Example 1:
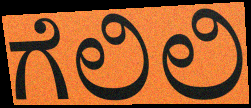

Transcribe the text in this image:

ಗೆಲಿಲಿ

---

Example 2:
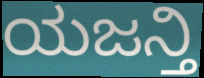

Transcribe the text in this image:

ಯಜನ್ತಿ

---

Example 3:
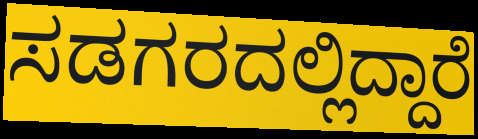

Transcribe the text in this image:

ಸಡಗರದಲ್ಲಿದ್ದಾರೆ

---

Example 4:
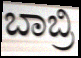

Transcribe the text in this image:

ಬಾಬ್ರಿ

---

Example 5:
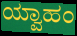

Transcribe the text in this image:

ಯ್ವಾಹಂ